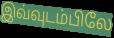
இவ்வுடம்பிலே